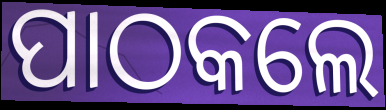
ପାଠକଲେ